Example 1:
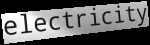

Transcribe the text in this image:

electricity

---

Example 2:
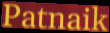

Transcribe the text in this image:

Patnaik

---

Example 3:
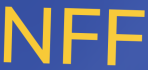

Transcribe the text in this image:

NFF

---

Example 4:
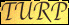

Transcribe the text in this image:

TURP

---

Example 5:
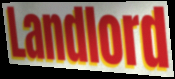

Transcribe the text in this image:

Landlord